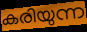
കരിയുന്ന